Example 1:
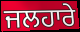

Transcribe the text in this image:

ਜਲਹਾਰੇ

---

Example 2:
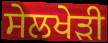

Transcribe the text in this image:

ਸੇਲਖੇੜੀ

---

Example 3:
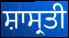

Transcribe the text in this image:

ਸ਼ਾਸ੍ਰਤੀ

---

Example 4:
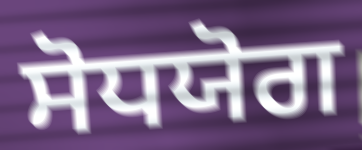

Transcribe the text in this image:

ਸੋਧਯੋਗ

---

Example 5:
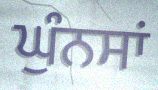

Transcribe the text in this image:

ਘੁੰਨਸਾਂ